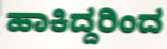
ಹಾಕಿದ್ದರಿಂದ